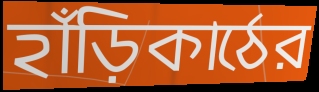
হাঁড়িকাঠের